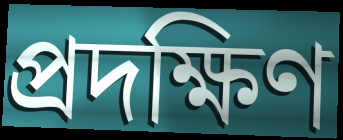
প্রদক্ষিণ